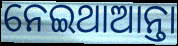
ନେଇଥାଆନ୍ତା